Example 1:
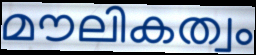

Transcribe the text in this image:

മൗലികത്വം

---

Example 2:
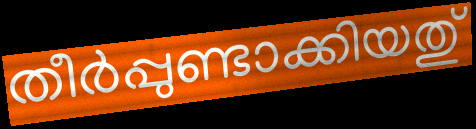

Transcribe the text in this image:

തീർപ്പുണ്ടാക്കിയതു്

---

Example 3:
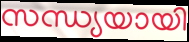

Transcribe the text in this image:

സന്ധ്യയായി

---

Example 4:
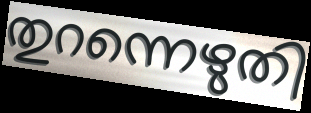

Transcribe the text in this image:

തുറന്നെഴുതി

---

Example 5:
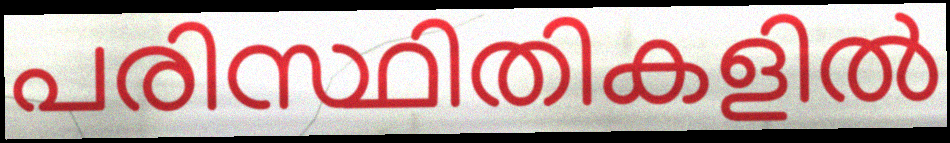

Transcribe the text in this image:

പരിസ്ഥിതികളിൽ